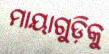
ମାୟାଗୁଡ଼ିକୁ